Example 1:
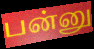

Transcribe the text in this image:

பன்னு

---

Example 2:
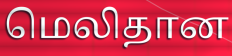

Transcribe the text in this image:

மெலிதான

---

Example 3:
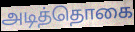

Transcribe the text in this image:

அடித்தொகை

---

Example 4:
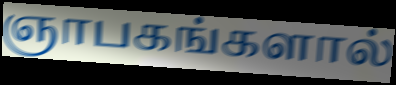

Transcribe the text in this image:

ஞாபகங்களால்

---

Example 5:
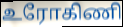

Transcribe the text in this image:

உரோகிணி